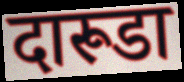
दारूडा